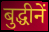
बुद्धीनें